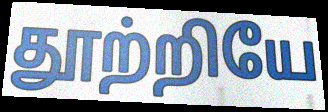
தூற்றியே